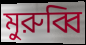
মুরুব্বি